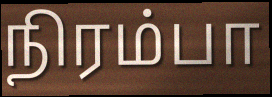
நிரம்பா